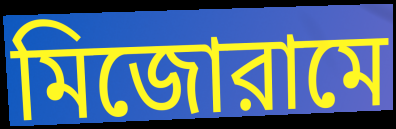
মিজোরামে